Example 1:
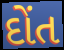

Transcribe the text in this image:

દોંત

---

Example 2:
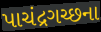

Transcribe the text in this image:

પાચંદ્રગચ્છના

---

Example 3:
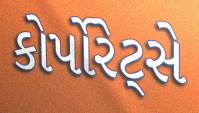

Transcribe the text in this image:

કોર્પોરેટ્સે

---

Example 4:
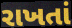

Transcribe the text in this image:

રાખતાં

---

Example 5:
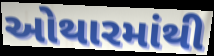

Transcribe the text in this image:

ઓથારમાંથી